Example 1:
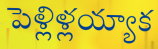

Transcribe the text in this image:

పెళ్లిళ్లయ్యాక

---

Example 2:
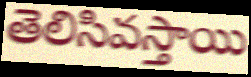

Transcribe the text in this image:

తెలిసివస్తాయి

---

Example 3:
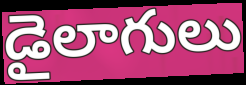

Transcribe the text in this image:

డైలాగులు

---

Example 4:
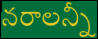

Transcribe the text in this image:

నరాలన్నీ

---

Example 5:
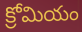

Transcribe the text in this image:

క్రోమియం